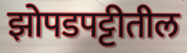
झोपडपट्टीतील